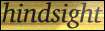
hindsight